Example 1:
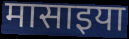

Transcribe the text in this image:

मासाइया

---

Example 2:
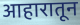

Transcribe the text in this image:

आहारातून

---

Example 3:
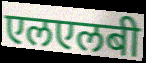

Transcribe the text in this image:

एलएलबी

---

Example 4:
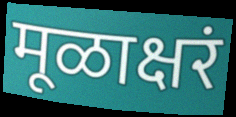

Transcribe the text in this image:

मूळाक्षरं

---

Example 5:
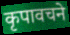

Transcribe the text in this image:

कृपावचने